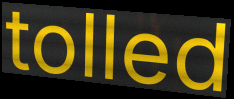
tolled